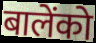
बालेंको